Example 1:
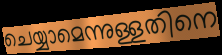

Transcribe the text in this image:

ചെയ്യാമെന്നുള്ളതിനെ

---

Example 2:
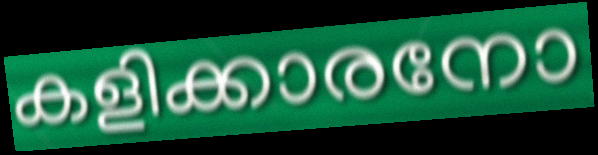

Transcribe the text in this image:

കളിക്കാരനോ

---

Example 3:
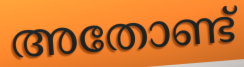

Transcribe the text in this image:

അതോണ്ട്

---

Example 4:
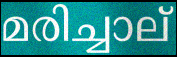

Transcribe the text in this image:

മരിച്ചാല്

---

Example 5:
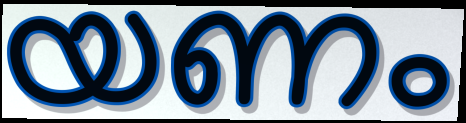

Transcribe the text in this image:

യണം